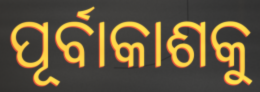
ପୂର୍ବାକାଶକୁ